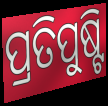
ପ୍ରତିପୁଷ୍ଟି